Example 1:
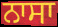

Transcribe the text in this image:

ਨਾਸਾ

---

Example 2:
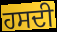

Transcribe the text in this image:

ਹਸਦੀ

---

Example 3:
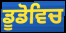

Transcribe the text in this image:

ਡੂਡੋਵਿਚ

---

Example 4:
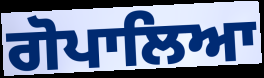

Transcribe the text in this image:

ਗੋਪਾਲਿਆ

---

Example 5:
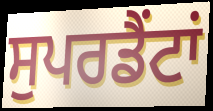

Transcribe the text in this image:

ਸੁਪਰਡੈਂਟਾਂ